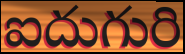
ఐదుగురి